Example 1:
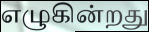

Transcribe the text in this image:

எழுகின்றது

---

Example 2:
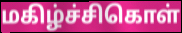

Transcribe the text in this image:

மகிழ்ச்சிகொள்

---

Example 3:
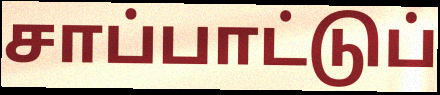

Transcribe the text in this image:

சாப்பாட்டுப்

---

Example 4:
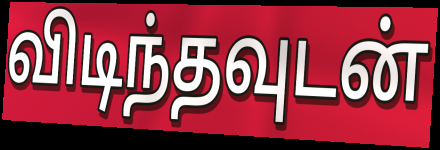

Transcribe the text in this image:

விடிந்தவுடன்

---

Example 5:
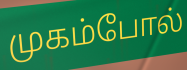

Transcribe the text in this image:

முகம்போல்